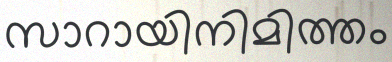
സാറായിനിമിത്തം